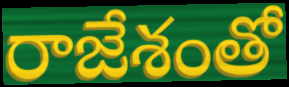
రాజేశంతో